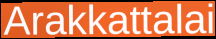
Arakkattalai